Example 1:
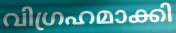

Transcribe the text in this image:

വിഗ്രഹമാക്കി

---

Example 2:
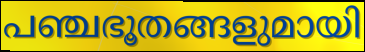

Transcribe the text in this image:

പഞ്ചഭൂതങ്ങളുമായി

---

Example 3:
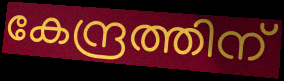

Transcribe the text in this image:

കേന്ദ്രത്തിന്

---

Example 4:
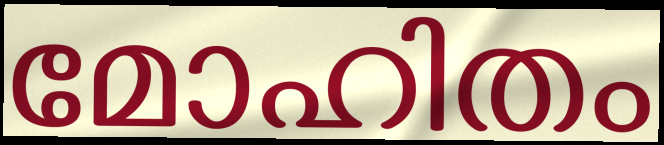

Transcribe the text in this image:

മോഹിതം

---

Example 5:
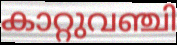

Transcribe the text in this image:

കാറ്റുവഞ്ചി